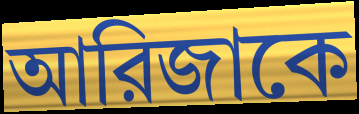
আরিজাকে